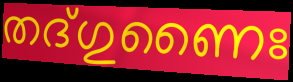
തദ്ഗുണൈഃ